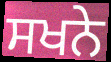
ਸਖਨੇ